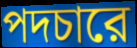
পদচারে